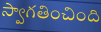
స్వాగతించింది